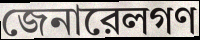
জেনারেলগণ